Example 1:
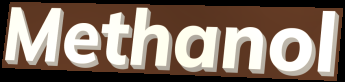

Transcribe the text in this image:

Methanol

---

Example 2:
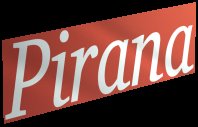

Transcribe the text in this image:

Pirana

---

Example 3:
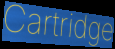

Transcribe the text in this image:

Cartridge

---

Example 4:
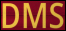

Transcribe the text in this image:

DMS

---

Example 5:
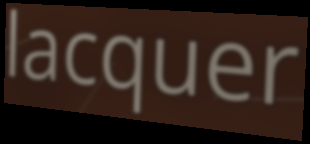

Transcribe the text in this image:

lacquer